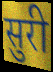
सुरी